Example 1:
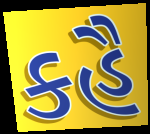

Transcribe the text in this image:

કહૈ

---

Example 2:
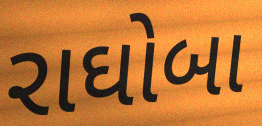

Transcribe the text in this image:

રાઘોબા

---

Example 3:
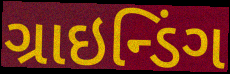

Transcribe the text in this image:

ગ્રાઇન્ડિંગ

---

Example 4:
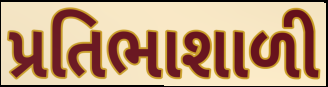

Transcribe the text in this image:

પ્રતિભાશાળી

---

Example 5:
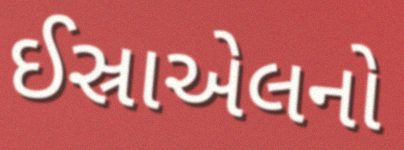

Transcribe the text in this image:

ઈસ્રાએલનો